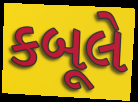
કબૂલે